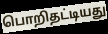
பொறிதட்டியது